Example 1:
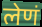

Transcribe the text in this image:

लेणं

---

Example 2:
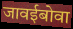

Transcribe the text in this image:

जावईबोवा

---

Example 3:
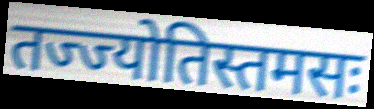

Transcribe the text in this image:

तज्ज्योतिस्तमसः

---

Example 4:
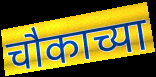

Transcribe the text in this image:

चौकाच्या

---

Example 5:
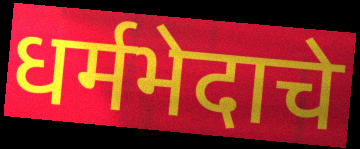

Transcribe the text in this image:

धर्मभेदाचे